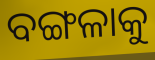
ବଙ୍ଗଳାକୁ